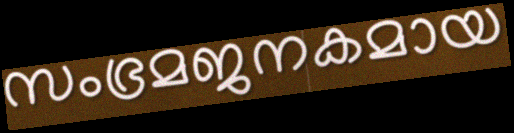
സംഭ്രമജനകമായ